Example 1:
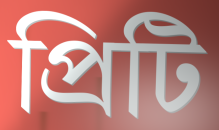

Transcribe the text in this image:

প্রিটি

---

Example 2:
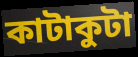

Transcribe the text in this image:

কাটাকুটা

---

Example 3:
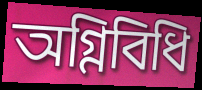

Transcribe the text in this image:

অগ্নিবিধি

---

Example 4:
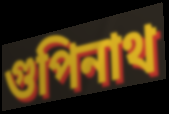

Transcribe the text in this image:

গুপিনাথ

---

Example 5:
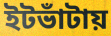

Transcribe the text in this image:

ইটভাঁটায়